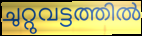
ചുറ്റുവട്ടത്തിൽ